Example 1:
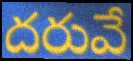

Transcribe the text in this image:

దరువే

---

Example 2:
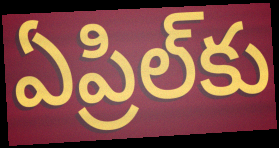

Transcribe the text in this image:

ఏప్రిల్‌కు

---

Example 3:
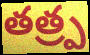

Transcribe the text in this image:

తత్ర్ప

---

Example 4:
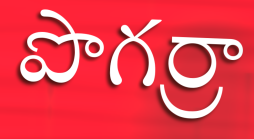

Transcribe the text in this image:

పొగర్రా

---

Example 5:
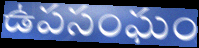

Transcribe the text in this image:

ఉపసంఘం